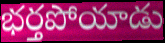
భర్తపోయాడు